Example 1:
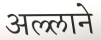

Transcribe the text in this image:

अल्लाने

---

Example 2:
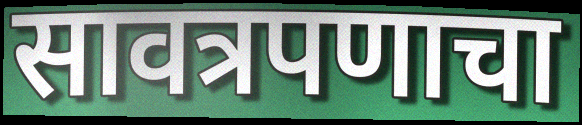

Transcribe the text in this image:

सावत्रपणाचा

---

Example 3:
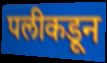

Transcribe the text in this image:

पलीकडून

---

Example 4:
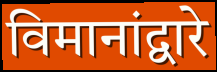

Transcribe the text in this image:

विमानांद्वारे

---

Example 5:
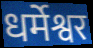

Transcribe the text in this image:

धर्मेश्वर